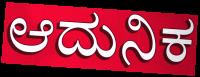
ಆದುನಿಕ